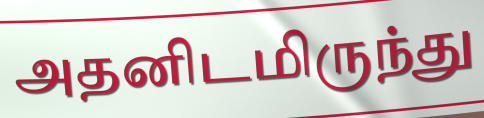
அதனிடமிருந்து